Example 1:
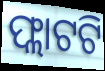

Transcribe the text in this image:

ଫ୍ଲାଟଟି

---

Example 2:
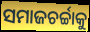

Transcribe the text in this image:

ସମାଜଚର୍ଚ୍ଚାକୁ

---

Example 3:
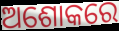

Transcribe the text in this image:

ଅଶୋକରେ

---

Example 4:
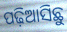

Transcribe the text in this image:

ପଢ଼ିଆସିଛୁ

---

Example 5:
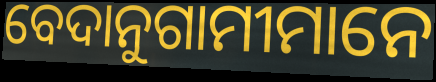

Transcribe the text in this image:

ବେଦାନୁଗାମୀମାନେ